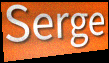
Serge